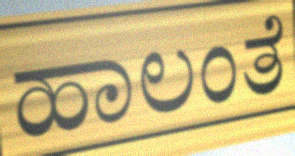
ಹಾಲಂತೆ